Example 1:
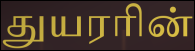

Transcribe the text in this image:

துயரரின்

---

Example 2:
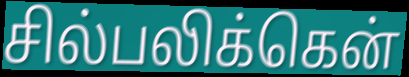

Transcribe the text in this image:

சில்பலிக்கென்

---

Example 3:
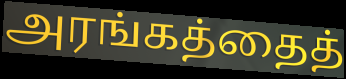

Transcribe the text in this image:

அரங்கத்தைத்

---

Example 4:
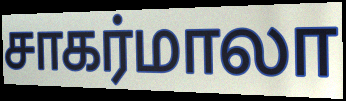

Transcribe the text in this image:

சாகர்மாலா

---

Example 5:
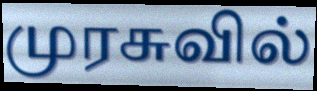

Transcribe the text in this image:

முரசுவில்